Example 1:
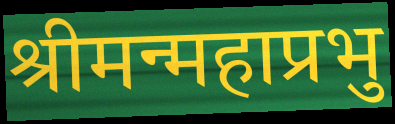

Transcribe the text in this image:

श्रीमन्महाप्रभु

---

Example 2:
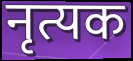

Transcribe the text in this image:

नृत्यक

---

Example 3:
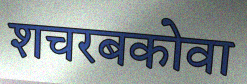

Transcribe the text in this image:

शचरबकोवा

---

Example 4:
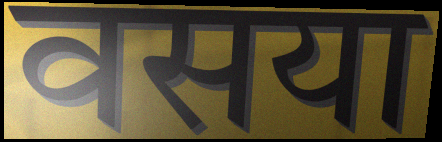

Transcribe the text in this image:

वसया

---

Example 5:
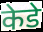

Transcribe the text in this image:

केडे